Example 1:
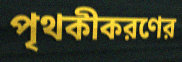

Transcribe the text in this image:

পৃথকীকরণের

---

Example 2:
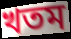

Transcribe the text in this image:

খতম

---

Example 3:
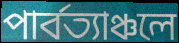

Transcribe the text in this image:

পার্বত্যাঞ্চলে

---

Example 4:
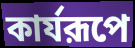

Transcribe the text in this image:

কার্যরূপে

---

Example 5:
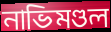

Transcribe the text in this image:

নাভিমণ্ডল